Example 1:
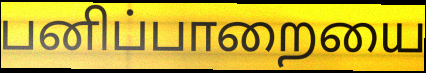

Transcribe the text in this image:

பனிப்பாறையை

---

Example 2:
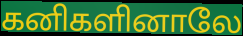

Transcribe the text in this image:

கனிகளினாலே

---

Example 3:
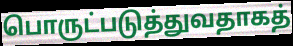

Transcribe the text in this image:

பொருட்படுத்துவதாகத்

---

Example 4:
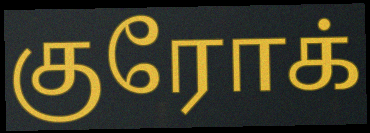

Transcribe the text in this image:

குரோக்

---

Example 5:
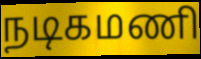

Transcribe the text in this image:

நடிகமணி